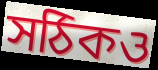
সঠিকও